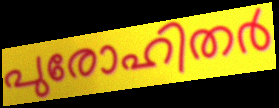
പുരോഹിതർ